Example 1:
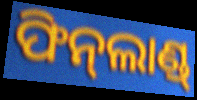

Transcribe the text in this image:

ଫିନ୍‌ଲାଣ୍ଡ୍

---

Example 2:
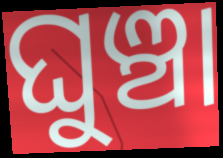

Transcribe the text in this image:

ଘୁଞ୍ଚା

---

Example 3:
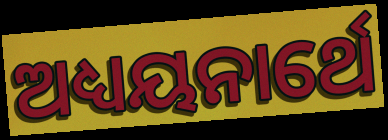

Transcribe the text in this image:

ଅଧ୍ୟୟନାର୍ଥେ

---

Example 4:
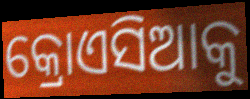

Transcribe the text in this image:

କ୍ରୋଏସିଆକୁ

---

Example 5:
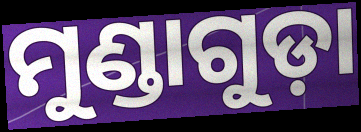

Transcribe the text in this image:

ମୁଣ୍ଡାଗୁଡ଼ା